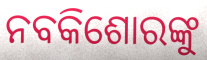
ନବକିଶୋରଙ୍କୁ